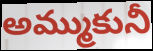
అమ్ముకునీ